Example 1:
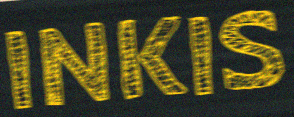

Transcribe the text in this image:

INKIS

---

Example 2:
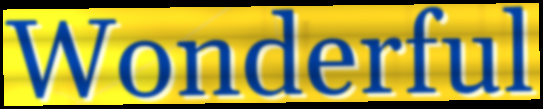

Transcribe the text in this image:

Wonderful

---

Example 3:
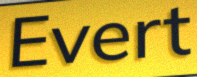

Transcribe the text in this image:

Evert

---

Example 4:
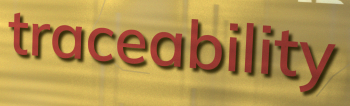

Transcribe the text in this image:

traceability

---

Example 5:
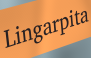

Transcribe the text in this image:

Lingarpita